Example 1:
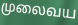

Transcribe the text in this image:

முலைவய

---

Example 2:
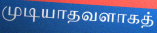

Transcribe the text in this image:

முடியாதவளாகத்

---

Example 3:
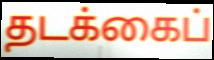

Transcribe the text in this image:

தடக்கைப்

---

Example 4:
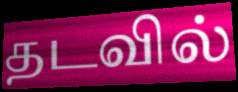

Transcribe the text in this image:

தடவில்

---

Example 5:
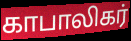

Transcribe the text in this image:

காபாலிகர்